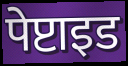
पेप्टाइड